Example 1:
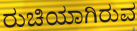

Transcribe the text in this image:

ರುಚಿಯಾಗಿರುವ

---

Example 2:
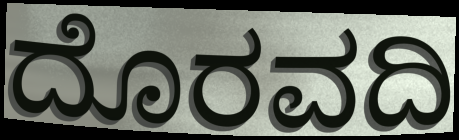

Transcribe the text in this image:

ದೊರವದಿ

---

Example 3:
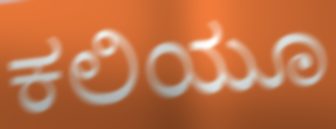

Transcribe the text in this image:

ಕಲಿಯೂ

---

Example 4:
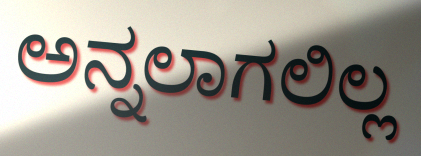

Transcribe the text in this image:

ಅನ್ನಲಾಗಲಿಲ್ಲ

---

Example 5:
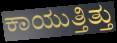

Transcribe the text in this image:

ಕಾಯುತ್ತಿತ್ತು